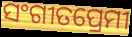
ସଂଗୀତପ୍ରେମୀ